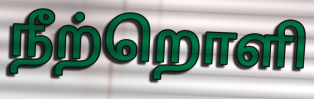
நீற்றொளி